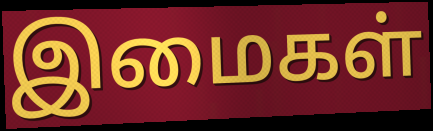
இமைகள்